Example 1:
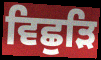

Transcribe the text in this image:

ਵਿਛੁੜਿ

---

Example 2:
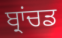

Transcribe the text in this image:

ਬ੍ਰਾਂਚਡ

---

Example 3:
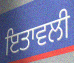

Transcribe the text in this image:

ਇਤਾਵਲੀ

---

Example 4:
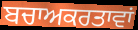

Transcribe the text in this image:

ਬਚਾਅਕਰਤਾਵਾਂ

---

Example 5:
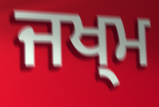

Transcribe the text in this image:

ਜਖ੍ਮ